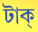
টাক্